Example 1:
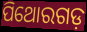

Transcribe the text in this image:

ପିଥୋରଗଡ଼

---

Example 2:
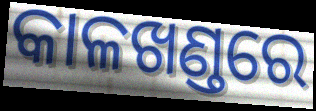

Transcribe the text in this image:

କାଳଖଣ୍ଡରେ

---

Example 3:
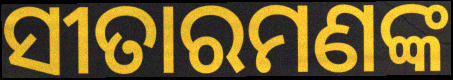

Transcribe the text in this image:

ସୀତାରମଣଙ୍କ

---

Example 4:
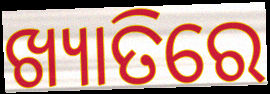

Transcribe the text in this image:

ଖ୍ୟାତିରେ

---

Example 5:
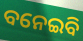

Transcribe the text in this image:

ବନେଇବି